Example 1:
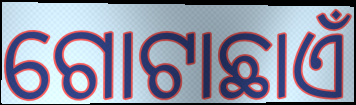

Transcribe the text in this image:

ଗୋଟାଛାଏଁ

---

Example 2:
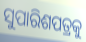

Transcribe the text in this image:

ସୁପାରିଶପତ୍ରକୁ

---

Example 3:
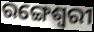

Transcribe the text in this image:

ରଙ୍ଗେଶ୍ୱରୀ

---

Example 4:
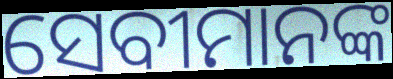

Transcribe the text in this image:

ସେବୀମାନଙ୍କ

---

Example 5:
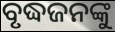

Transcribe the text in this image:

ବୃଦ୍ଧଜନଙ୍କୁ